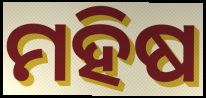
ମହିଷ